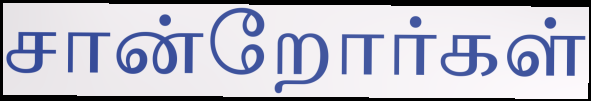
சான்றோர்கள்